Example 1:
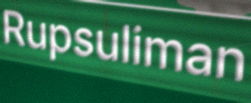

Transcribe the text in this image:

Rupsuliman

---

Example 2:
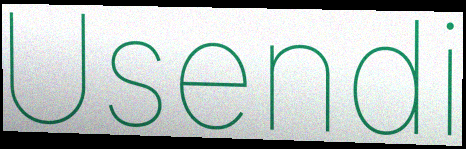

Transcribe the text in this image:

Usendi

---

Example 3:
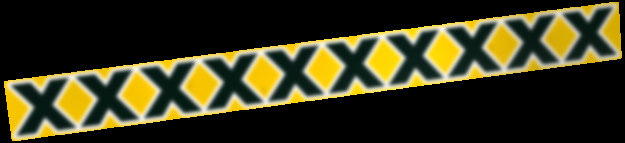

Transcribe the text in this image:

xxxxxxxxxx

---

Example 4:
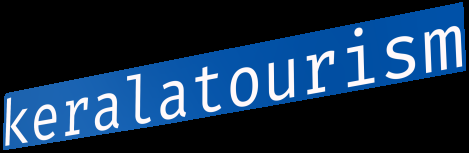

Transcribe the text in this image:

keralatourism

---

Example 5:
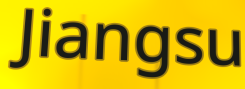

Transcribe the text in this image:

Jiangsu